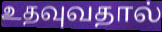
உதவுவதால்